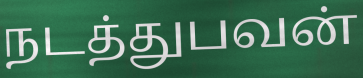
நடத்துபவன்